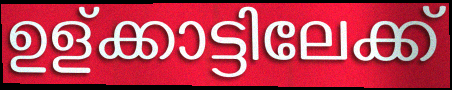
ഉള്ക്കാട്ടിലേക്ക്